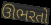
ઊભરતો